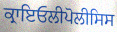
ਕ੍ਰਾਇਓਲੀਪੋਲੀਸਿਸ